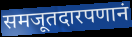
समजूतदारपणानं